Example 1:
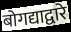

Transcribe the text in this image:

बोगद्याद्वारे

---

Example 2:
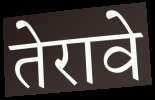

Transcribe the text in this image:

तेरावे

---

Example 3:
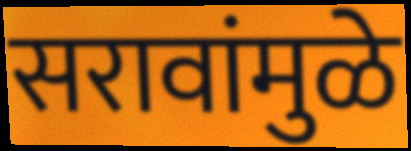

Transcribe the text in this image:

सरावांमुळे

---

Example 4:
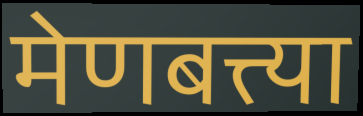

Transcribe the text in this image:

मेणबत्त्या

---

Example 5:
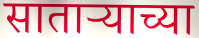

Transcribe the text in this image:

साताऱ्याच्या